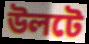
উলটে